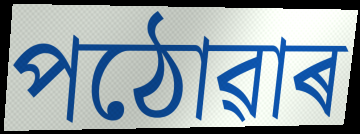
পঠোৱাৰ